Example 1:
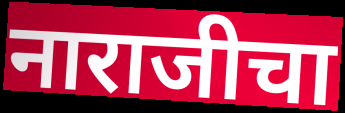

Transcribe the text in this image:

नाराजीचा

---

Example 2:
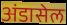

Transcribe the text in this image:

अंडासेल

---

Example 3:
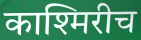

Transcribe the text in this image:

काश्मिरीच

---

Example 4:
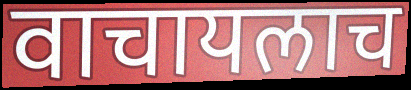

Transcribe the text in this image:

वाचायलाच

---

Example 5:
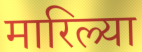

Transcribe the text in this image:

मारिल्या